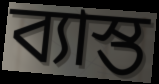
ব্যাস্ত